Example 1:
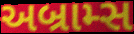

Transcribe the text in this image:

અબ્રામ્સ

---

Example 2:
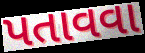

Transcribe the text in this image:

પતાવવા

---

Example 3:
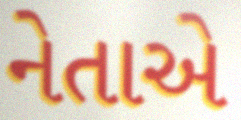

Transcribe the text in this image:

નેતાએ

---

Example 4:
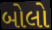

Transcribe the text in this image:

બોલો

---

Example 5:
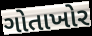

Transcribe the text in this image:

ગોતાખોર